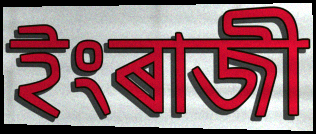
ইংৰাজী